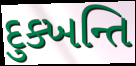
દુક્ખન્તિ